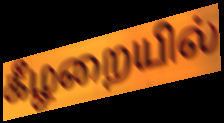
கீழறையில்